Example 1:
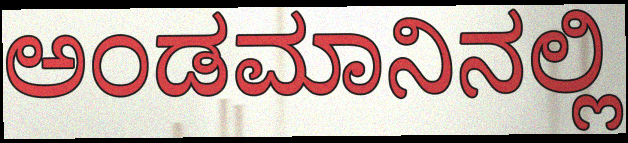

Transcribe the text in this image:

ಅಂಡಮಾನಿನಲ್ಲಿ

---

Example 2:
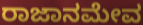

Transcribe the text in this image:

ರಾಜಾನಮೇವ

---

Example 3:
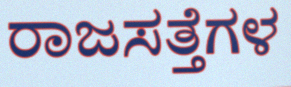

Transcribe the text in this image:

ರಾಜಸತ್ತೆಗಳ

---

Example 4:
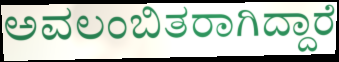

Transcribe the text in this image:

ಅವಲಂಬಿತರಾಗಿದ್ದಾರೆ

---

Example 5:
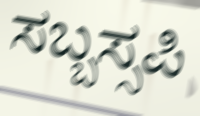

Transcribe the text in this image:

ಸಬ್ಬಸ್ಸಪಿ